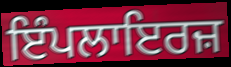
ਇੰਪਲਾਇਰਜ਼